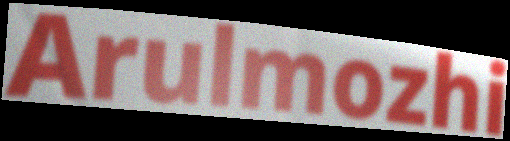
Arulmozhi